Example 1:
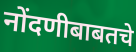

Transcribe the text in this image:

नोंदणीबाबतचे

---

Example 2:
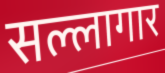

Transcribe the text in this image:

सल्लागार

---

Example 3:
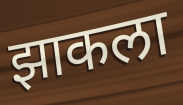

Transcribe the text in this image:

झाकला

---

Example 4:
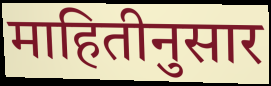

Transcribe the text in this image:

माहितीनुसार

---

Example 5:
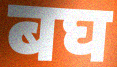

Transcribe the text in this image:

बघ